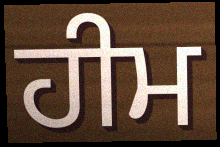
ਹੀਮ